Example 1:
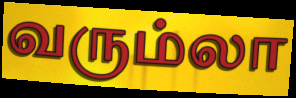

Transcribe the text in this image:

வரும்லா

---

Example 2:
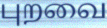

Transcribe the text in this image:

புறவை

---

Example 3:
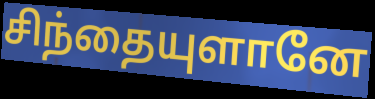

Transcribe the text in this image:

சிந்தையுளானே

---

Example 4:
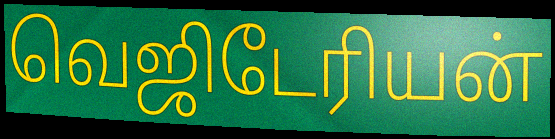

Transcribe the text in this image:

வெஜிடேரியன்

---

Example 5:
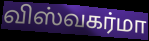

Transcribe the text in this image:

விஸ்வகர்மா